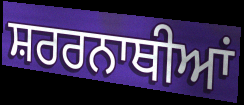
ਸ਼ਰਰਨਾਥੀਆਂ